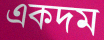
একদম